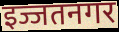
इज्जतनगर